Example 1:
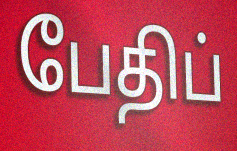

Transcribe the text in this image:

பேதிப்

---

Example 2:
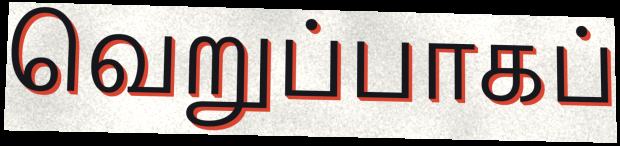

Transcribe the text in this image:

வெறுப்பாகப்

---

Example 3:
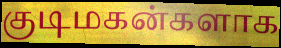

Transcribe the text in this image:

குடிமகன்களாக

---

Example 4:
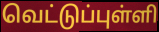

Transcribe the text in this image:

வெட்டுப்புள்ளி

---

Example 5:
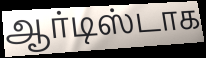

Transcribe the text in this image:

ஆர்டிஸ்டாக